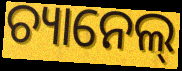
ଚ୍ୟାନେଲ୍